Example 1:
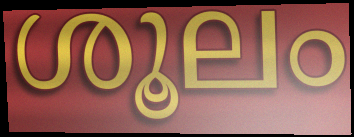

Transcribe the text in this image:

ശൂലം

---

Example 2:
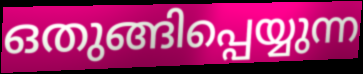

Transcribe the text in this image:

ഒതുങ്ങിപ്പെയ്യുന്ന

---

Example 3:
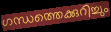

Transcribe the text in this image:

ഗന്ധത്തെക്കുറിച്ചും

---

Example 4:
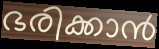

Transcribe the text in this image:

ഭരിക്കാൻ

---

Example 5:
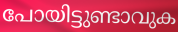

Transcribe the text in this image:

പോയിട്ടുണ്ടാവുക